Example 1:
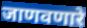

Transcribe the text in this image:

जाणवणारे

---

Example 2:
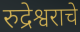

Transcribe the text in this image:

रुद्रेश्वराचे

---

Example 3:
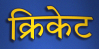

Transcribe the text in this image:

क्रिकेट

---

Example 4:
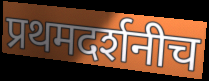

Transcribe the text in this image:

प्रथमदर्शनीच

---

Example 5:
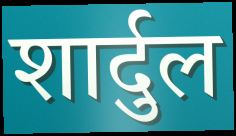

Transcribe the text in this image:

शार्दुल